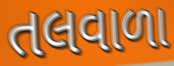
તલવાળા